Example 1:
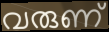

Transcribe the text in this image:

വരുണ്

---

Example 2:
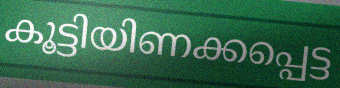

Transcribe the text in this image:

കൂട്ടിയിണക്കപ്പെട്ട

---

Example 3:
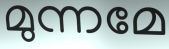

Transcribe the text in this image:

മുന്നമേ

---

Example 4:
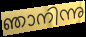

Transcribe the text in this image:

ഞാനിന്നു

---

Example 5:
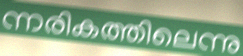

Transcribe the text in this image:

ന്നരികത്തിലെന്നു